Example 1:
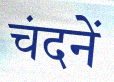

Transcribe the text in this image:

चंदनें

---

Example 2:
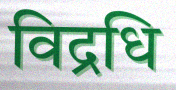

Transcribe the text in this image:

विद्रधि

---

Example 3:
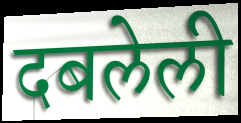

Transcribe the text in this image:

दबलेली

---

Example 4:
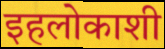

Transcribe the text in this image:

इहलोकाशी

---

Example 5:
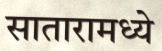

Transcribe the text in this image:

सातारामध्ये